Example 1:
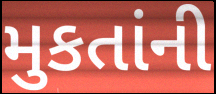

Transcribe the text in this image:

મુકતાંની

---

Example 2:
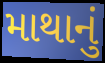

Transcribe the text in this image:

માથાનું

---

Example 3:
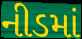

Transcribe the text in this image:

નીડમાં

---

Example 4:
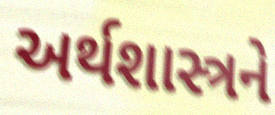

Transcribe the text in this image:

અર્થશાસ્ત્રને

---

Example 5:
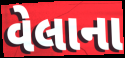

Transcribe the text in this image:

વેલાના